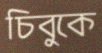
চিবুকে